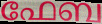
ഫേബ